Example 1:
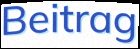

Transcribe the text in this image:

Beitrag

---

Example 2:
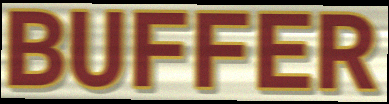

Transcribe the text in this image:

BUFFER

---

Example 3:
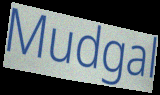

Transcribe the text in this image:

Mudgal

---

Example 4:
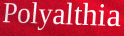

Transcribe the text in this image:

Polyalthia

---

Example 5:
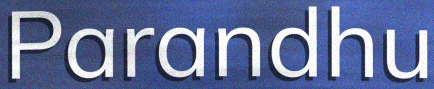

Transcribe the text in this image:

Parandhu